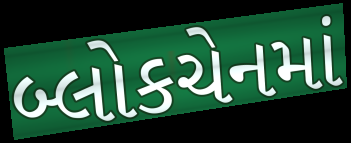
બ્લોકચેનમાં